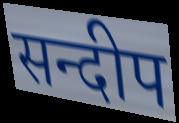
सन्दीप